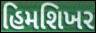
હિમશિખર